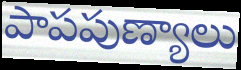
పాపపుణ్యాలు